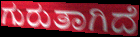
ಗುರುತಾಗಿದೆ